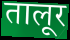
तालूर